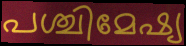
പശ്ചിമേഷ്യ